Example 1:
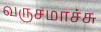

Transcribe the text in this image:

வருசமாச்சு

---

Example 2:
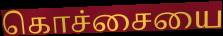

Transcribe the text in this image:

கொச்சையை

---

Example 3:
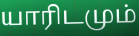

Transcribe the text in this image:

யாரிடமும்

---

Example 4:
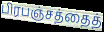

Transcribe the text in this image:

பிரபஞ்சத்தைத்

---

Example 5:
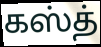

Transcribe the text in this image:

கஸ்த்